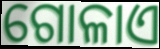
ଗୋଳାଏ